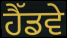
ਹੈੱਡਵੇ